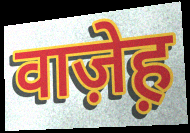
वाज़ेह़